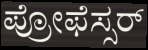
ಪ್ರೋಫೆಸ್ಸರ್